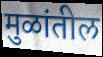
मुळांतील